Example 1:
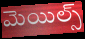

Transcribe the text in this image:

మెయిల్స్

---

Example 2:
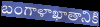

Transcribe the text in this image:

బంగాళాఖాతానికి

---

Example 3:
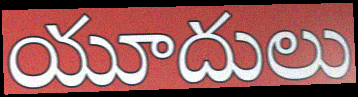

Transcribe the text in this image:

యూదులు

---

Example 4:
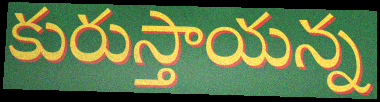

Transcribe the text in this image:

కురుస్తాయన్న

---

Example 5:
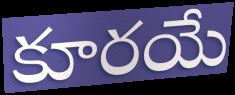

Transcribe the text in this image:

కూరయే